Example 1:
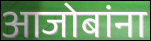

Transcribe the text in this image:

आजोबांना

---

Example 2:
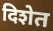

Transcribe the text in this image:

दिशेत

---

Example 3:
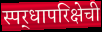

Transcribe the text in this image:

स्पर्धापरिक्षेची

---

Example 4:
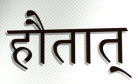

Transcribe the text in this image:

हौतात्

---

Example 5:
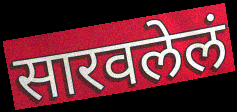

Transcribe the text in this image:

सारवलेलं